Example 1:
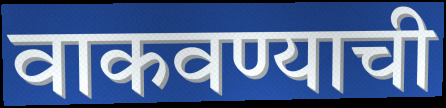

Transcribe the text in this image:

वाकवण्याची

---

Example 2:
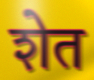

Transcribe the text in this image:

शेत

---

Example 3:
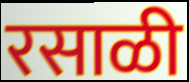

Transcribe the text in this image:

रसाळी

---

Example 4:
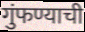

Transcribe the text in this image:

गुंफण्याची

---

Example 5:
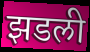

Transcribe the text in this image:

झडली